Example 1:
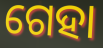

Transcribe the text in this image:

ଗେହା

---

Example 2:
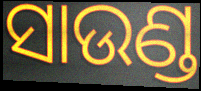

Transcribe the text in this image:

ସାଉଣ୍ଡ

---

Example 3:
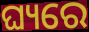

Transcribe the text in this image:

ଘ୍ୟରେ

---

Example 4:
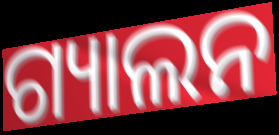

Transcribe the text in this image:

ଗ୍ୟାଲନ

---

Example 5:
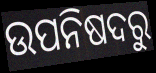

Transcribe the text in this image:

ଉପନିଷଦରୁ